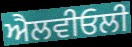
ਐਲਵੀਓਲੀ